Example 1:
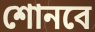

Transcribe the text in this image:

শোনবে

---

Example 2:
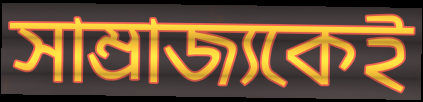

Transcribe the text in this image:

সাম্রাজ্যকেই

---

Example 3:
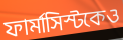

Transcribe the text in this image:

ফার্মাসিস্টকেও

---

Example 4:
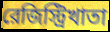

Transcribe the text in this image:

রেজিস্ট্রিখাতা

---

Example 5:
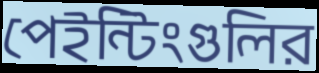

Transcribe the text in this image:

পেইন্টিংগুলির